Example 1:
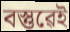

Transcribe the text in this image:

বস্তুৱেই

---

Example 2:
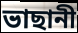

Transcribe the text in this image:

ভাছানী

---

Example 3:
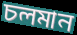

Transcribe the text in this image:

চলমান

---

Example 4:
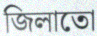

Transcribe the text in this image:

জিলাতো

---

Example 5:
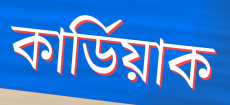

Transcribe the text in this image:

কাৰ্ডিয়াক